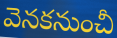
వెనకనుంచీ